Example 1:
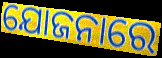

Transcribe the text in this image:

ଯୋଜନାରେ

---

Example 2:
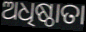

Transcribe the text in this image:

ଅଧିଷ୍ଠାତା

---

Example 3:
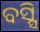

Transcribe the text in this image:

ବସ୍ସି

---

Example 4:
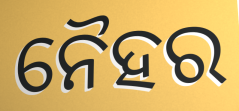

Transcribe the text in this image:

ନୈହର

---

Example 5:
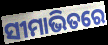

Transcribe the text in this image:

ସୀମାଭିତରେ